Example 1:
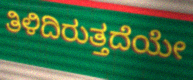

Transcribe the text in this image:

ತಿಳಿದಿರುತ್ತದೆಯೇ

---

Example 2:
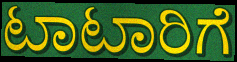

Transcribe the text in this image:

ಟಾಟಾರಿಗೆ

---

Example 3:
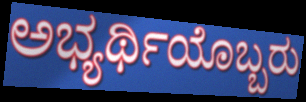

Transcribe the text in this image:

ಅಭ್ಯರ್ಥಿಯೊಬ್ಬರು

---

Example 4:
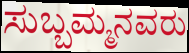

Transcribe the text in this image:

ಸುಬ್ಬಮ್ಮನವರು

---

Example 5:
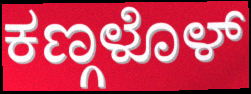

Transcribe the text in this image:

ಕಣ್ಗಳೊಳ್